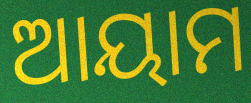
ଆୟାମ